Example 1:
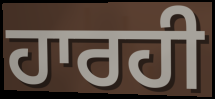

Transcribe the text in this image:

ਹਾਰਹੀ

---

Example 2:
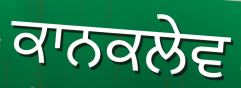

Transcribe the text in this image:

ਕਾਨਕਲੇਵ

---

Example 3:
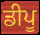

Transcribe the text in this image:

ਡੀਪੂ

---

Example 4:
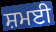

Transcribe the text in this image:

ਸ਼ਮਈ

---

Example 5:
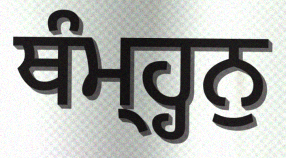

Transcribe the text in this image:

ਥੰਮ੍ਹ੍ਹਨੁ